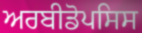
ਅਰਬੀਡੋਪਸਿਸ